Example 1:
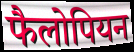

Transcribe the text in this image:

फैलोपियन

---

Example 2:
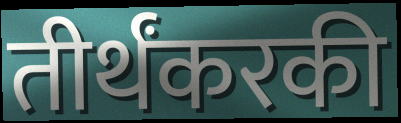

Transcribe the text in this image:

तीर्थंकरकी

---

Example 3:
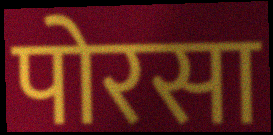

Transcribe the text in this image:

पोरसा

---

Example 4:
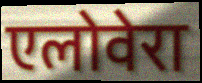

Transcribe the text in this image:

एलोवेरा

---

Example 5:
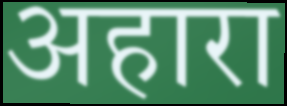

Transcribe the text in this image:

अहारा